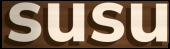
susu